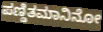
ಪಣ್ಡಿತಮಾನಿನೋ